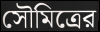
সৌমিত্রের